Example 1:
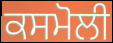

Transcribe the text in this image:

ਕਸਮੋਲੀ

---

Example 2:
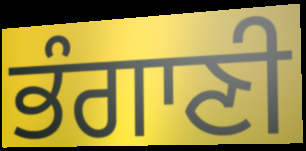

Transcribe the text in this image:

ਭੰਗਾਣੀ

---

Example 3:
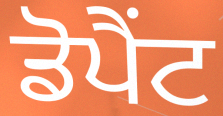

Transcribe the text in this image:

ਡੋਪੈਂਟ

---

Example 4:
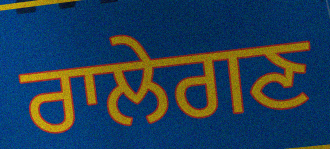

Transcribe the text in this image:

ਰਾਲੇਗਣ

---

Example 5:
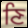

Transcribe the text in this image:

ਣਿ